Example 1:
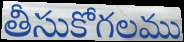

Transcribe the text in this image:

తీసుకోగలము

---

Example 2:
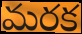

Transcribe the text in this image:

మరక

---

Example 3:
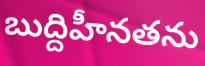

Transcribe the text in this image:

బుద్దిహీనతను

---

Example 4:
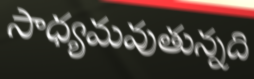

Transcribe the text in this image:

సాధ్యమవుతున్నది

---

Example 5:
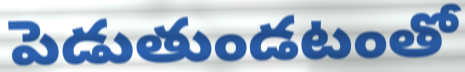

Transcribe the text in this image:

పెడుతుండటంతో